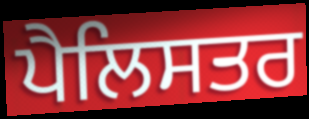
ਪੈਲਿਸਤਰ